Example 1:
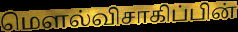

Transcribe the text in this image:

மௌல்விசாகிப்பின்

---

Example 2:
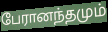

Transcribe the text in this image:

பேரானந்தமும்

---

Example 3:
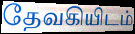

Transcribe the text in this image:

தேவகியிடம்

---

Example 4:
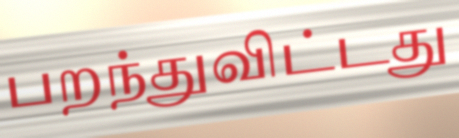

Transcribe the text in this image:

பறந்துவிட்டது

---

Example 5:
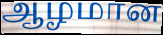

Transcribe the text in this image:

ஆழமான